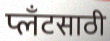
प्लँटसाठी